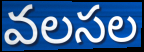
వలసల